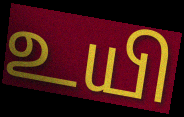
உயி